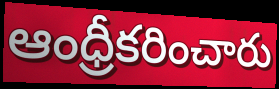
ఆంధ్రీకరించారు